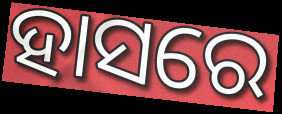
ହାସରେ